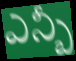
ఎన్బీ